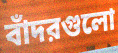
বাঁদরগুলো